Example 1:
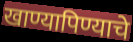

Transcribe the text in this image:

खाण्यापिण्याचे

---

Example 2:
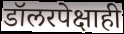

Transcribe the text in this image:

डॉलरपेक्षाही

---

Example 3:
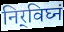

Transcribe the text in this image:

निर्विघ्नं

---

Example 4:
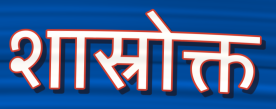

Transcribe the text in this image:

शास्रोक्त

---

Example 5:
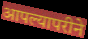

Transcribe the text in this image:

आपल्यापरीने